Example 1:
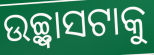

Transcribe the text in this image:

ଉଚ୍ଛ୍ୱାସଟାକୁ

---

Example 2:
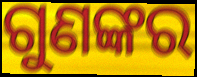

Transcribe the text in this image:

ଗୁଣଙ୍କର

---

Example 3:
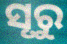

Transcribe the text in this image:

ସୃରୁ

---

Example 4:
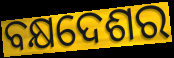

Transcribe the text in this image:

ବକ୍ଷଦେଶର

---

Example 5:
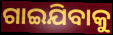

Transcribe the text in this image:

ଗାଇଯିବାକୁ